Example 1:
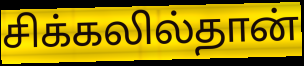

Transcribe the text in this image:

சிக்கலில்தான்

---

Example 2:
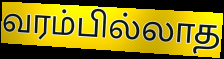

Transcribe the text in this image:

வரம்பில்லாத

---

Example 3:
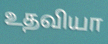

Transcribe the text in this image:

உதவியா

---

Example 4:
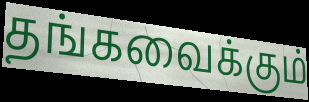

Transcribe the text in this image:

தங்கவைக்கும்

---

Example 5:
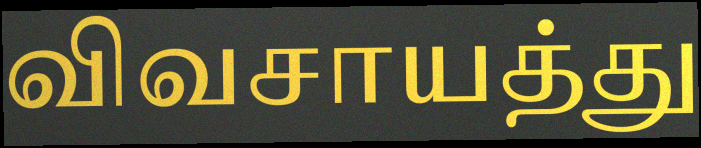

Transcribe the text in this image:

விவசாயத்து